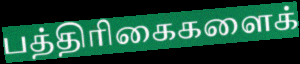
பத்திரிகைகளைக்